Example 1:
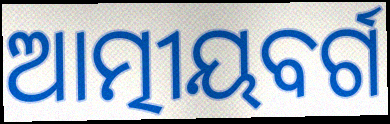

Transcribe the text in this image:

ଆତ୍ମୀୟବର୍ଗ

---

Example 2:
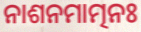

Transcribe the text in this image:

ନାଶନମାତ୍ମନଃ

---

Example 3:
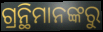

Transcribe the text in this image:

ଗ୍ରନ୍ଥିମାନଙ୍କରୁ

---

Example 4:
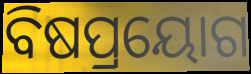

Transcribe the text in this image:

ବିଷପ୍ରୟୋଗ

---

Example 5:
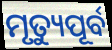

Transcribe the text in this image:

ମୃତ୍ୟୁପୂର୍ବ